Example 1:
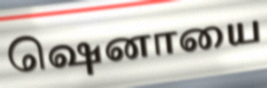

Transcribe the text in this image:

ஷெனாயை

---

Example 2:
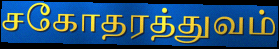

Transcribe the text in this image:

சகோதரத்துவம்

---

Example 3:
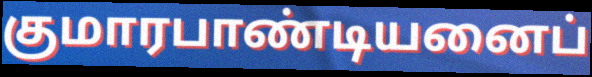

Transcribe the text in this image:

குமாரபாண்டியனைப்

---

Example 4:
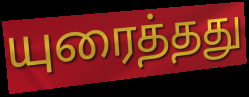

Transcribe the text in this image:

யுரைத்தது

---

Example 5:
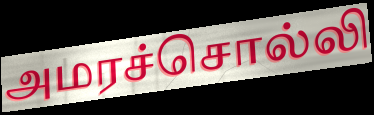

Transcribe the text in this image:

அமரச்சொல்லி